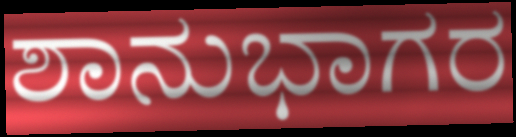
ಶಾನುಭಾಗರ